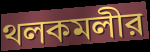
থলকমলীর